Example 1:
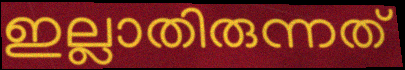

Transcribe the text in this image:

ഇല്ലാതിരുന്നത്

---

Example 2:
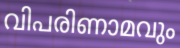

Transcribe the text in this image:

വിപരിണാമവും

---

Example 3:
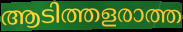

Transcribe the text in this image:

ആടിത്തളരാത്ത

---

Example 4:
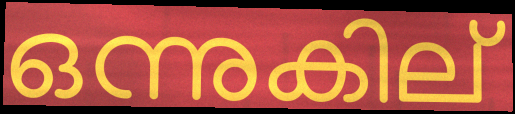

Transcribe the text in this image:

ഒന്നുകില്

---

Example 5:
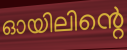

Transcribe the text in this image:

ഓയിലിന്റെ